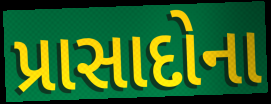
પ્રાસાદોના